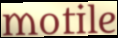
motile